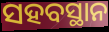
ସହବସ୍ଥାନ